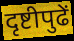
दृष्टीपुढें